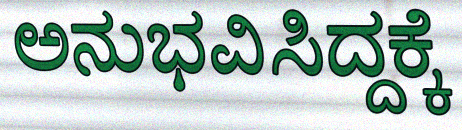
ಅನುಭವಿಸಿದ್ದಕ್ಕೆ